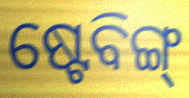
ଷ୍ଟେବିଙ୍ଗ୍